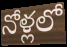
నోళ్లలో